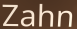
Zahn